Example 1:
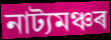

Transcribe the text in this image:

নাট্যমঞ্চৰ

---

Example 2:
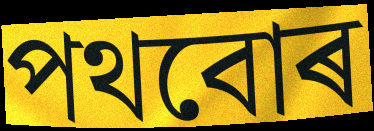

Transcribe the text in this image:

পথবোৰ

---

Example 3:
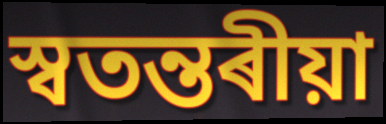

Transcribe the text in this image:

স্বতন্তৰীয়া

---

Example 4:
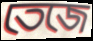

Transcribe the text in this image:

তেজে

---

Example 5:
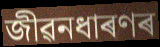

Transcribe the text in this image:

জীৱনধাৰণৰ